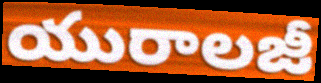
యురాలజీ